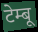
टेम्बू